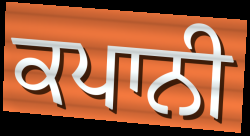
ਕਪਾਨੀ